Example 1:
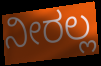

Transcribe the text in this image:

ನೀರಲ್ಲ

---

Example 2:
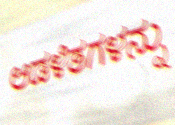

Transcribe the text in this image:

ಆಡಳಿತಗಳನ್ನು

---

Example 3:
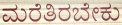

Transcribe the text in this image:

ಮರೆತಿರಬೇಕು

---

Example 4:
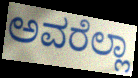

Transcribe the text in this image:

ಅವರೆಲ್ಲಾ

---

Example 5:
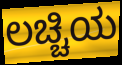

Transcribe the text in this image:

ಲಚ್ಚಿಯ